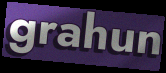
grahun